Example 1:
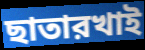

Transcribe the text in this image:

ছাতারখাই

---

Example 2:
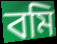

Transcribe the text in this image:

বমি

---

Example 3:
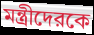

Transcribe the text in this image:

মন্ত্রীদেরকে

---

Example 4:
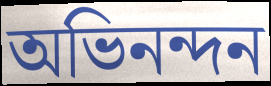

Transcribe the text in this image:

অভিনন্দন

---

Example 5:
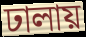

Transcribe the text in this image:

ঢালায়